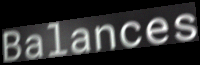
Balances